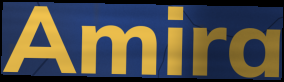
Amira